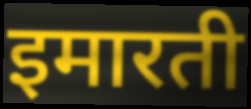
इमारती